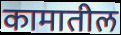
कामातील